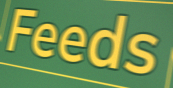
Feeds